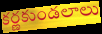
కర్ణకుండలాలు